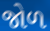
જોળ